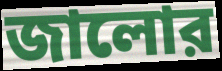
জালোর